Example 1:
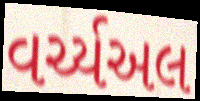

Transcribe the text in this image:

વર્ચ્યઅલ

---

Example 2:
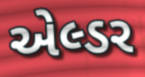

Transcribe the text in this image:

એલ્ડર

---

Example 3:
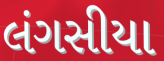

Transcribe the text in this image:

લંગસીયા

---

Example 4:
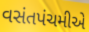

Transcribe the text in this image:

વસંતપંચમીએ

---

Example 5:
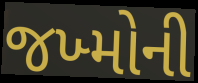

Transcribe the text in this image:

જખ્મોની